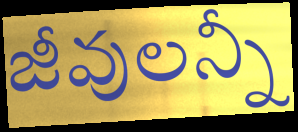
జీవులన్నీ